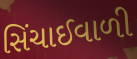
સિંચાઈવાળી